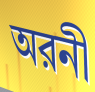
অরনী